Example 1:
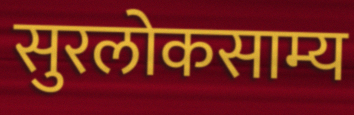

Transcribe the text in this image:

सुरलोकसाम्य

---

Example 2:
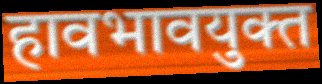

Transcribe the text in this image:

हावभावयुक्त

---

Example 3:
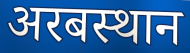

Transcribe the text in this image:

अरबस्थान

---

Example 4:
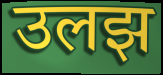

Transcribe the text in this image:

उलझ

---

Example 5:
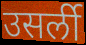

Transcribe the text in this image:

उसर्ली